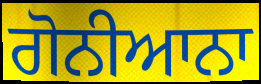
ਗੋਨੀਆਨਾ